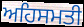
ਅਹਿਸਮਤੀ